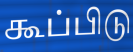
கூப்பிடு